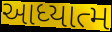
આધ્યાત્મ